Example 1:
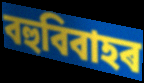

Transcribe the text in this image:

বহুবিবাহৰ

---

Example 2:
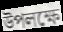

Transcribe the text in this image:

উপলক্ষে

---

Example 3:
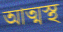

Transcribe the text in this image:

আত্মস্থ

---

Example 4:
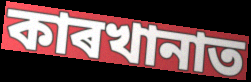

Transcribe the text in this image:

কাৰখানাত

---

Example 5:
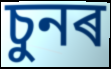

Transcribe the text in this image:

চুনৰ